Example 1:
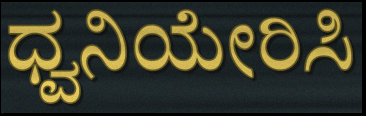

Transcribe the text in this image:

ಧ್ವನಿಯೇರಿಸಿ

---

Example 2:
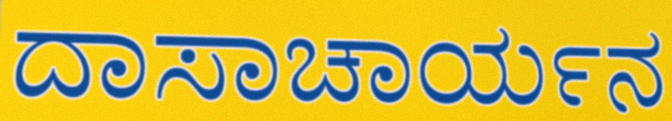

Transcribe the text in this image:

ದಾಸಾಚಾರ್ಯನ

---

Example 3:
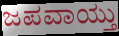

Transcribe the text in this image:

ಜಪವಾಯ್ತು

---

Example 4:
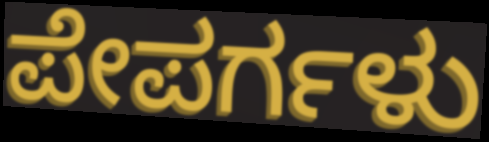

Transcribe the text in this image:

ಪೇಪರ್ಗಳು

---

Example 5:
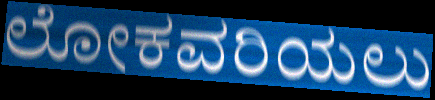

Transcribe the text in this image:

ಲೋಕವರಿಯಲು